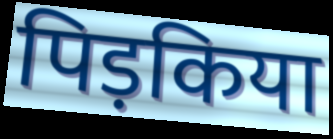
पिड़किया